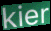
kier